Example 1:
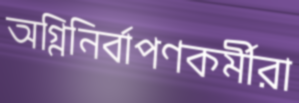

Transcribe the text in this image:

অগ্নিনির্বাপণকর্মীরা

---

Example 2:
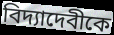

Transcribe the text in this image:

বিদ্যাদেবীকে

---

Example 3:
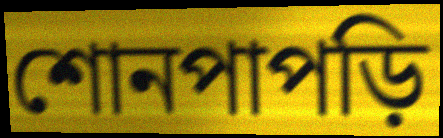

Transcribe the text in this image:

শোনপাপড়ি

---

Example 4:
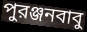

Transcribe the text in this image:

পুরঞ্জনবাবু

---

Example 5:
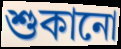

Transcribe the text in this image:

শুকানো